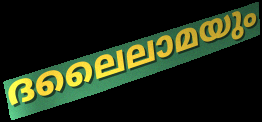
ദലൈലാമയും